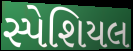
સ્પેશિયલ